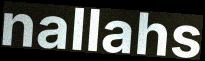
nallahs